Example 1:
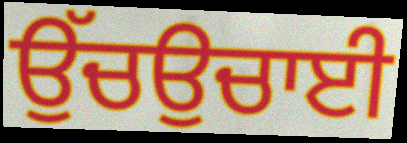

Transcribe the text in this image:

ਉੱਚਉਚਾਈ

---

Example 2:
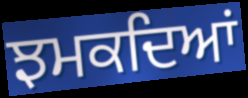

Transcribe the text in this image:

ਝਮਕਦਿਆਂ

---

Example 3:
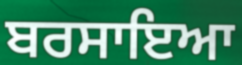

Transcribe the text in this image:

ਬਰਸਾਇਆ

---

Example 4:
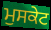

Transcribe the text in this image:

ਮੁਸਕੇਟ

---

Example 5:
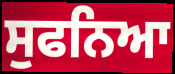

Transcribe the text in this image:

ਸੁਫਨਿਆ